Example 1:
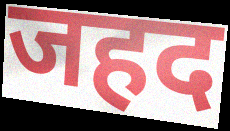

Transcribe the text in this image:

जहद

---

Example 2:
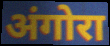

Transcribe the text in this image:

अंगोरा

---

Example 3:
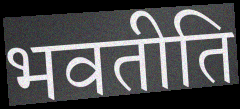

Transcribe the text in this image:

भवतीति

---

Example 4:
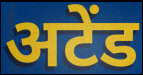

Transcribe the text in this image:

अटेंड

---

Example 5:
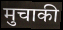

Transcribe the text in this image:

मुचाकी